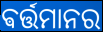
ଵର୍ତ୍ତମାନର